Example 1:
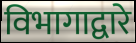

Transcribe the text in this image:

विभागाद्वारे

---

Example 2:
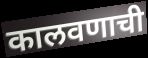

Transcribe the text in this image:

कालवणाची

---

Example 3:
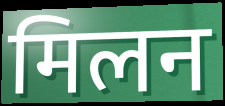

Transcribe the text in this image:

मिलन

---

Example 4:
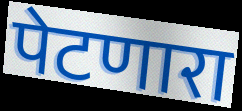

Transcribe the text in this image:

पेटणारा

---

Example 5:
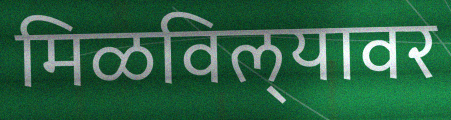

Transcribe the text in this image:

मिळविल्यावर